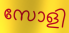
സോളി